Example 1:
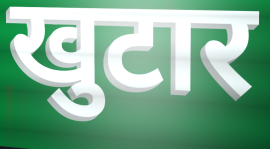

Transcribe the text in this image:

खुटार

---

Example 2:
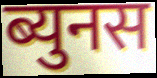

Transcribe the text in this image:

ब्युनस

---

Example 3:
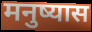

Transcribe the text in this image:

मनुष्यास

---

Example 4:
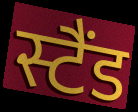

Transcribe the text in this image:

स्‍टैंड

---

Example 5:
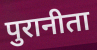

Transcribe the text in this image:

पुरानीता